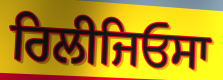
ਰਿਲੀਜਿਓਸਾ